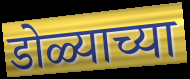
डोळ्याच्या